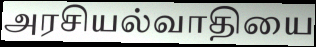
அரசியல்வாதியை